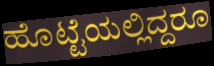
ಹೊಟ್ಟೆಯಲ್ಲಿದ್ದರೂ